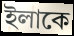
ইলাকে